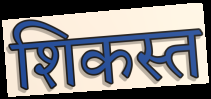
शिकस्त